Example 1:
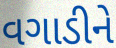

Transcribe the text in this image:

વગાડીને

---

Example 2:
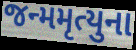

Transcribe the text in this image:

જન્મમૃત્યુના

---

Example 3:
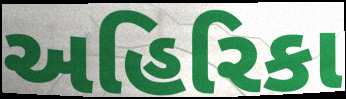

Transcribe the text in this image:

અહિરિકા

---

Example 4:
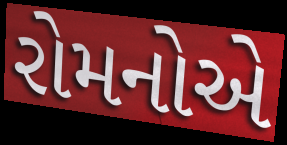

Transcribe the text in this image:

રોમનોએ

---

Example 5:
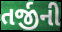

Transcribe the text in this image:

તર્જીની